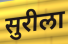
सुरीला